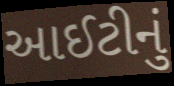
આઈટીનું